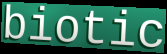
biotic